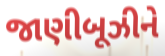
જાણીબૂઝીને